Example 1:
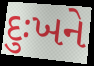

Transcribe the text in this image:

દુઃખને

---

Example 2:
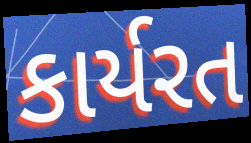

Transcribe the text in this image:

કાર્યરત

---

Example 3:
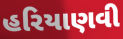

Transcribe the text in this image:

હરિયાણવી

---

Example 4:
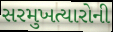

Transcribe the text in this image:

સરમુખત્યારોની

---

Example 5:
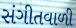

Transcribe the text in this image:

સંગીતવાળી